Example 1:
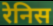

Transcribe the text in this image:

रेनिस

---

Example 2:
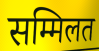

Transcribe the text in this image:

सम्मिलत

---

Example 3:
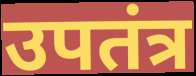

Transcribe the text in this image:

उपतंत्र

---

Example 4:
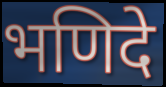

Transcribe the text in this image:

भणिदे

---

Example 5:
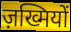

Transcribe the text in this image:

ज़ख्मियों